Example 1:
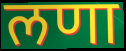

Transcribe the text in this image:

लणा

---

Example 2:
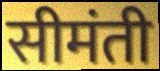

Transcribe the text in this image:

सीमंती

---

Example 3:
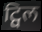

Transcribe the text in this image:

ट्विल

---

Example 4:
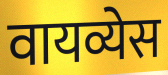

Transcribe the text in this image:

वायव्येस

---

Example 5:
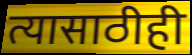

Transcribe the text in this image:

त्यासाठीही